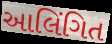
આલિંગિત